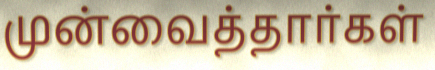
முன்வைத்தார்கள்